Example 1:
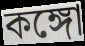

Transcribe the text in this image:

কঙ্গো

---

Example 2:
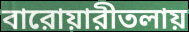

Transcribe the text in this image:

বারোয়ারীতলায়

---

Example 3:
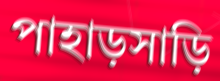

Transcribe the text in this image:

পাহাড়সাড়ি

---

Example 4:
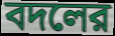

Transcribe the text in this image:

বদলের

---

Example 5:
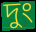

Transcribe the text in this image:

দুং